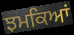
ਝਮਕਿਆਂ